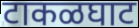
टाकळघाट